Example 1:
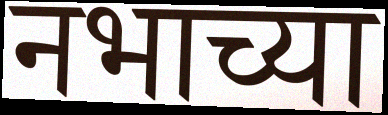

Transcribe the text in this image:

नभाच्या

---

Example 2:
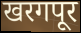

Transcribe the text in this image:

खरगपूर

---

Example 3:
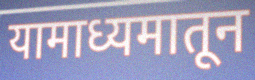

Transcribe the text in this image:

यामाध्यमातून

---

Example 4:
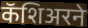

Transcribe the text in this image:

कॅशिअरने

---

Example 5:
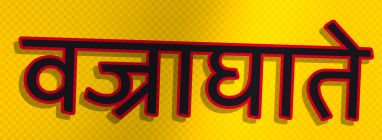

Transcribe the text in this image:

वज्राघाते